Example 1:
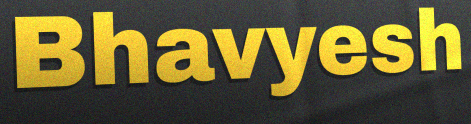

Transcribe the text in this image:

Bhavyesh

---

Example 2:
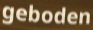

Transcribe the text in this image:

geboden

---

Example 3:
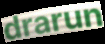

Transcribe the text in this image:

drarun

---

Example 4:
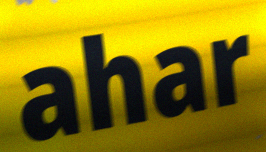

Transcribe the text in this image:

ahar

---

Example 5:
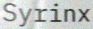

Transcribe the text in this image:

Syrinx